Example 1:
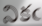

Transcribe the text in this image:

నికఁ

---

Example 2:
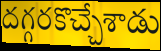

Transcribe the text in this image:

దగ్గరకొచ్చేశాడు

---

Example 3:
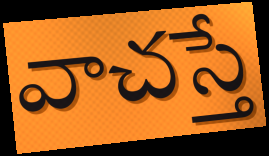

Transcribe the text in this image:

వాచస్తే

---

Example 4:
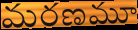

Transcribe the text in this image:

మరణమూ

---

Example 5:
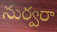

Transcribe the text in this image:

నుర్వరా